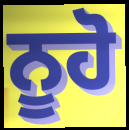
ਨੂਹੋ